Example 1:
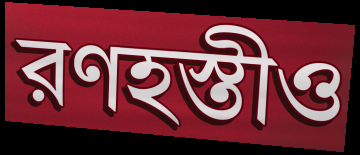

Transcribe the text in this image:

রণহস্তীও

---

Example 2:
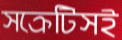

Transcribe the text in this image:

সক্রেটিসই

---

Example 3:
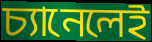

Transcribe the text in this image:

চ্যানেলেই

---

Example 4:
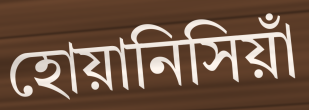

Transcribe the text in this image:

হোয়ানিসিয়াঁ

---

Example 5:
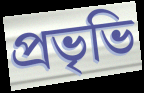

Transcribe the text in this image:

প্রভৃভি